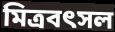
মিত্রবৎসল